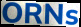
ORNs